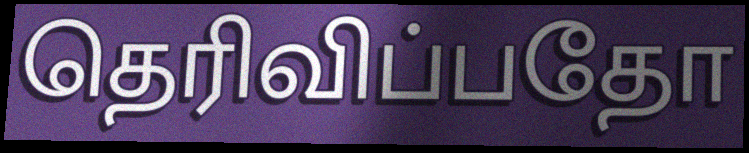
தெரிவிப்பதோ